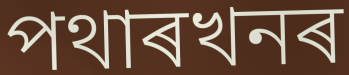
পথাৰখনৰ